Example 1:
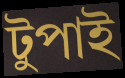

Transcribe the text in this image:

টুপাই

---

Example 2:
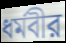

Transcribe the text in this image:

ধর্মবীর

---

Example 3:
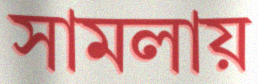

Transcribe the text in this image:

সামলায়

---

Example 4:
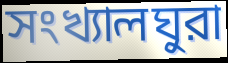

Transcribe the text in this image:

সংখ্যালঘুরা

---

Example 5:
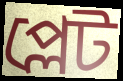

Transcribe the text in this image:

প্লেট